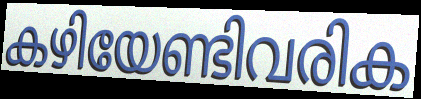
കഴിയേണ്ടിവരിക